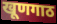
खूणगाठ